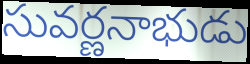
సువర్ణనాభుడు